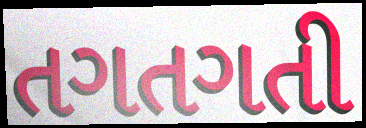
તગતગતી